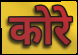
कोरे